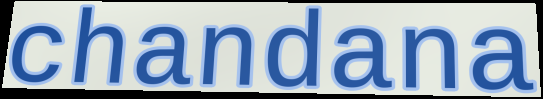
chandana